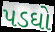
પડઘો